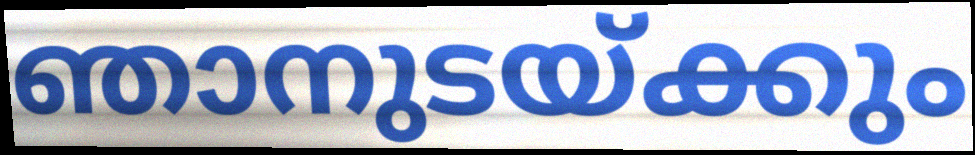
ഞാനുടയ്ക്കും